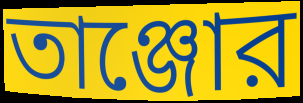
তাঞ্জোর